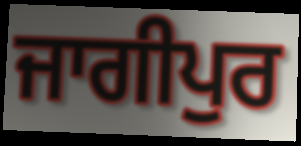
ਜਾਗੀਪੁਰ